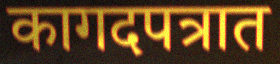
कागदपत्रात